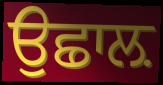
ਉਛਾਲ਼